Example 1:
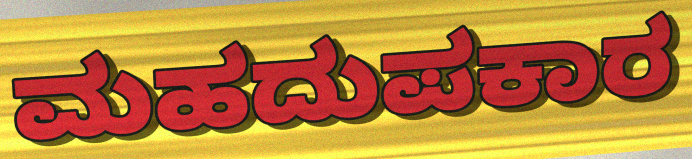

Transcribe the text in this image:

ಮಹದುಪಕಾರ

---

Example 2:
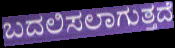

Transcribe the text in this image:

ಬದಲಿಸಲಾಗುತ್ತದೆ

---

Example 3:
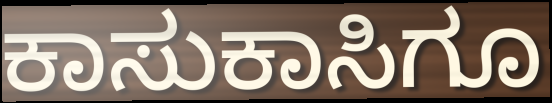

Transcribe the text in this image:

ಕಾಸುಕಾಸಿಗೂ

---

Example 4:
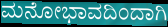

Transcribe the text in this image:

ಮನೋಭಾವದಿಂದಾಗಿ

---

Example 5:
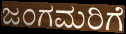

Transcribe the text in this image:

ಜಂಗಮರಿಗೆ